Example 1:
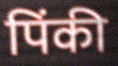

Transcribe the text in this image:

पिंकी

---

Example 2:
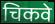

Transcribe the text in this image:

चिकवे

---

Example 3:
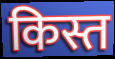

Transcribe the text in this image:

किस्त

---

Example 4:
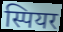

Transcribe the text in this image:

स्पियर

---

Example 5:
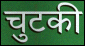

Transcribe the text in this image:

चुटकी